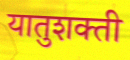
यातुशक्ती